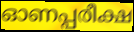
ഓണപ്പരീക്ഷ